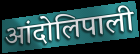
आंदोलिपाली